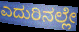
ಎದುರಿನಲ್ಲೇ